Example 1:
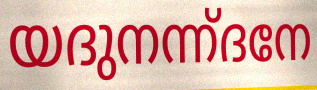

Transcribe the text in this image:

യദുനന്ന്ദനേ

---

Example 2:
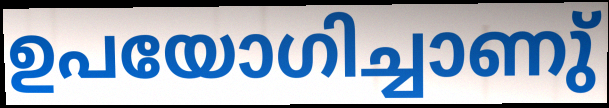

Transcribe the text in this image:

ഉപയോഗിച്ചാണു്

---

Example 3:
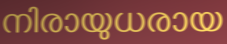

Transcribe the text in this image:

നിരായുധരായ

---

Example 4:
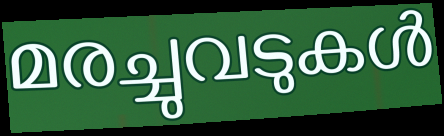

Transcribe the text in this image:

മരച്ചുവടുകൾ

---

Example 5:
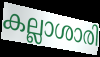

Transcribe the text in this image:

കല്ലാശാരി